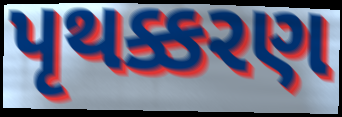
પૃથક્કરણ